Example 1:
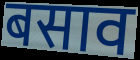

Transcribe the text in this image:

बसाव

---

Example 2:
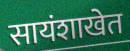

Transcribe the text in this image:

सायंशाखेत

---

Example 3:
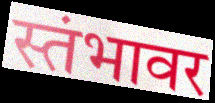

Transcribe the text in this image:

स्तंभावर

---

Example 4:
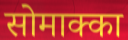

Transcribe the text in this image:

सोमाक्का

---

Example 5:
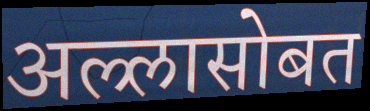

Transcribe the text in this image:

अल्लासोबत